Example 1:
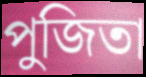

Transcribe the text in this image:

পুজিতা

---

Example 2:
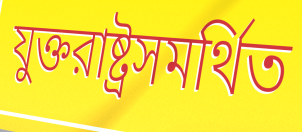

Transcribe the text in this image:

যুক্তরাষ্ট্রসমর্থিত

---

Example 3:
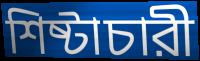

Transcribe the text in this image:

শিষ্টাচারী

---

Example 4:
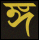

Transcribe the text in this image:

ঙ্গ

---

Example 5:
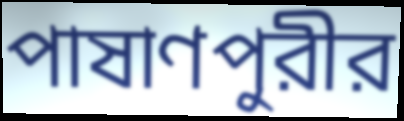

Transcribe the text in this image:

পাষাণপুরীর